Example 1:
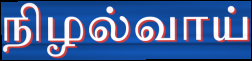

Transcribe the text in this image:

நிழல்வாய்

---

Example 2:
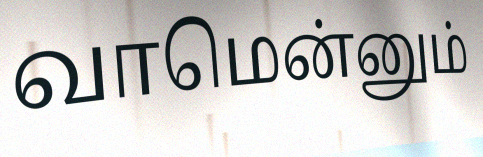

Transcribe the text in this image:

வாமென்னும்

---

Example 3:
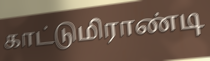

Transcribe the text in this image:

காட்டுமிராண்டி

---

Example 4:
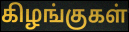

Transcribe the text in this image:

கிழங்குகள்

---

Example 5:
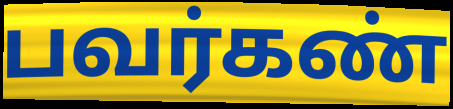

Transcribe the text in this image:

பவர்கண்